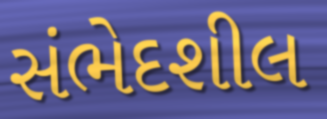
સંભેદશીલ